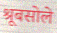
श्रूबसोले